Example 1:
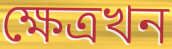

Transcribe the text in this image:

ক্ষেত্ৰখন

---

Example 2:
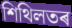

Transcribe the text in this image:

শিথিলতৰ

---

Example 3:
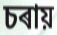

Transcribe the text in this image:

চৰায়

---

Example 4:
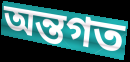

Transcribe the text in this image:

অন্তগত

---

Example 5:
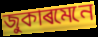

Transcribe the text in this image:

জুকাৰমেনে